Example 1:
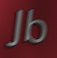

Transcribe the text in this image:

Jb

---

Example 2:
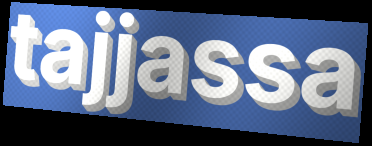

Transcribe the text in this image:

tajjassa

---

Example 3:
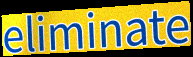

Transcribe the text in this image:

eliminate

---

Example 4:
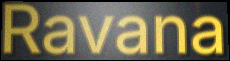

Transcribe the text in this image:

Ravana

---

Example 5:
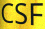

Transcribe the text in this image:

CSF